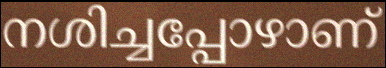
നശിച്ചപ്പോഴാണ്